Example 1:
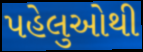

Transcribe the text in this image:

પહેલુઓથી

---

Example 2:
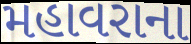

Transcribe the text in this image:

મહાવરાના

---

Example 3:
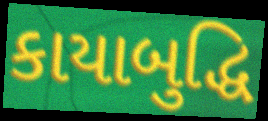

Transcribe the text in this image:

કાયાબુદ્ધિ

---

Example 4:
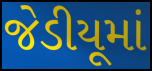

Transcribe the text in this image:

જેડીયૂમાં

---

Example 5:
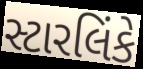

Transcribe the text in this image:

સ્ટારલિંકે